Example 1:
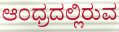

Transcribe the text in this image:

ಆಂಧ್ರದಲ್ಲಿರುವ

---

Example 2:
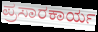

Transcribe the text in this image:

ಪ್ರಸಾರಕಾರ್ಯ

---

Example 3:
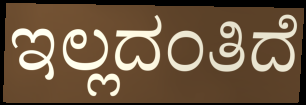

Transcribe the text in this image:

ಇಲ್ಲದಂತಿದೆ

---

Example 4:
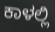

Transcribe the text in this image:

ಕಾಳಲ್ಲಿ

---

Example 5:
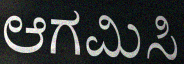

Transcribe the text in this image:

ಆಗಮಿಸಿ